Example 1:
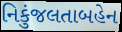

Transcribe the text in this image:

નિકુંજલતાબહેન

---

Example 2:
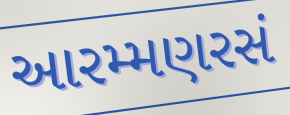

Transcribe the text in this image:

આરમ્મણરસં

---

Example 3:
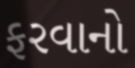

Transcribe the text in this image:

ફરવાનો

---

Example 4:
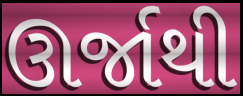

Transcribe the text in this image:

ઊર્જાથી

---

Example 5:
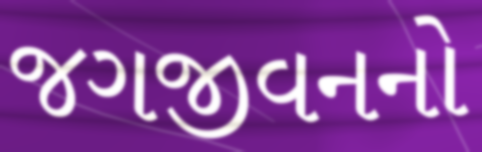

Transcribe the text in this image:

જગજીવનનો